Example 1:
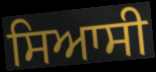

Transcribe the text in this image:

ਸਿਆਸੀ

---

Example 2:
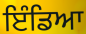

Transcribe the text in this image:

ਇੰਡਿਆ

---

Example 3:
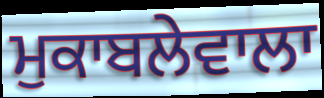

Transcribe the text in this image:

ਮੁਕਾਬਲੇਵਾਲਾ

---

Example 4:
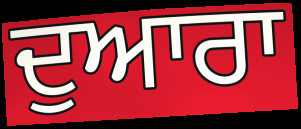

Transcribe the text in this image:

ਦੁਆਰਾ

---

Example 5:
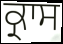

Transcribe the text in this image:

ਕ੍ਰਾਸ